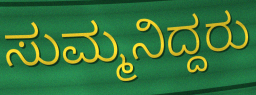
ಸುಮ್ಮನಿದ್ದರು